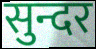
सुन्‍दर